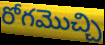
రోగమొచ్చి